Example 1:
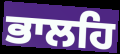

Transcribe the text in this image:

ਭਾਲਹਿ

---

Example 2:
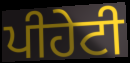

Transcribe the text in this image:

ਪੀਹੇਟੀ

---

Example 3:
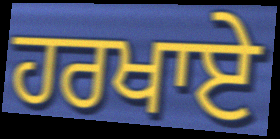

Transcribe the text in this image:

ਹਰਖਾਏ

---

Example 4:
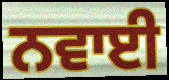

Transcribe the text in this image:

ਨਵਾਈ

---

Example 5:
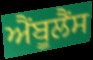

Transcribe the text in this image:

ਐੰਬੂਲੈਂਸ